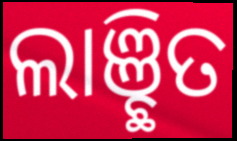
ଲାଞ୍ଛିତ